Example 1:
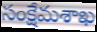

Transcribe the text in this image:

సంక్షేమశాఖ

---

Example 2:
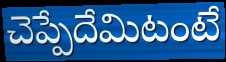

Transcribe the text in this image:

చెప్పేదేమిటంటే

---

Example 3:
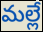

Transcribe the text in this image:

మల్లే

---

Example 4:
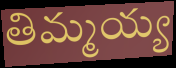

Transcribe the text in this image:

తిమ్మయ్య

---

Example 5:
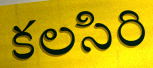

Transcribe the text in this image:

కలసిరి